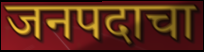
जनपदाचा